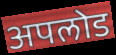
अपलोड